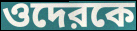
ওদেরকে